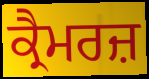
ਕ੍ਰੈਮਰਜ਼